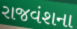
રાજવંશના